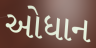
ઓધાન